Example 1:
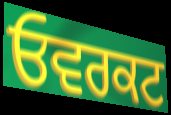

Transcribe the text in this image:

ਓਵਰਕਟ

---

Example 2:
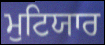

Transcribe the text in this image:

ਮੁਟਿਯਾਰ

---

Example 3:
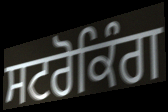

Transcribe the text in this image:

ਸਟਰੋਕਿੰਗ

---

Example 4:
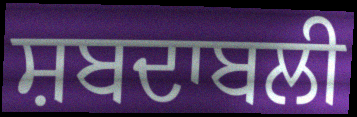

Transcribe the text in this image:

ਸ਼ਬਦਾਬਲੀ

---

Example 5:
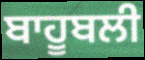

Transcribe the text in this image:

ਬਾਹੂਬਲੀ